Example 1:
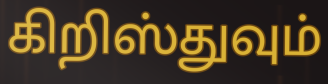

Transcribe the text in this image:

கிறிஸ்துவும்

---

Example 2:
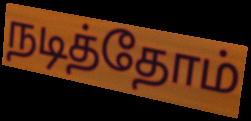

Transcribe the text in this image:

நடித்தோம்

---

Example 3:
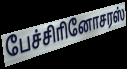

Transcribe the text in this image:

பேச்சிரினோசரஸ்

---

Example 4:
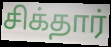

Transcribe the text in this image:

சிக்தார்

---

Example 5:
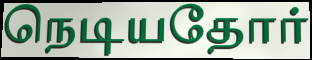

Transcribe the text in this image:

நெடியதோர்